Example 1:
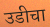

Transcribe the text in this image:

उडीचा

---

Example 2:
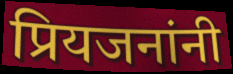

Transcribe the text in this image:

प्रियजनांनी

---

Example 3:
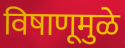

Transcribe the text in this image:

विषाणूमुळे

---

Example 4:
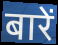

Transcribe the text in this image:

बारें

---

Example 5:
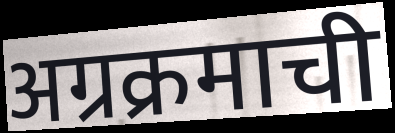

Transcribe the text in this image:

अग्रक्रमाची